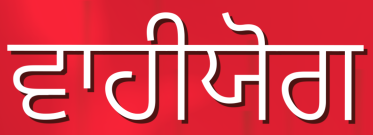
ਵਾਹੀਯੋਗ